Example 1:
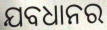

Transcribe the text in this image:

ଯବଧାନର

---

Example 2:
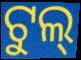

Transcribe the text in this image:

ଟୁଲ୍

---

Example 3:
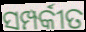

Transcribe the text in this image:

ସମ୍ପର୍କୀତ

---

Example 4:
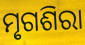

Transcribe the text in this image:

ମୃଗଶିରା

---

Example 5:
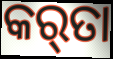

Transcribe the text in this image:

କର୍‌ତା